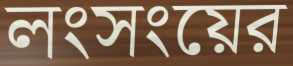
লংসংয়ের